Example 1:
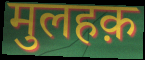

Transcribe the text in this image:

मुलहक़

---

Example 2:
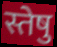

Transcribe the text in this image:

स्तेषु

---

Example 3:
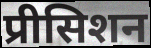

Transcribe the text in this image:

प्रीसिशन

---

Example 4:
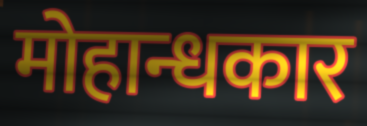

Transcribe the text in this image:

मोहान्धकार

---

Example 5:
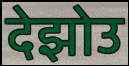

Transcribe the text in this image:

देझोउ